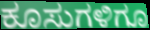
ಕೂಸುಗಳಿಗೂ